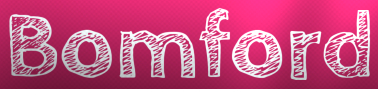
Bomford